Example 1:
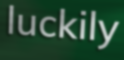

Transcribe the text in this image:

luckily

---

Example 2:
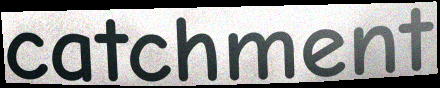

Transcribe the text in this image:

catchment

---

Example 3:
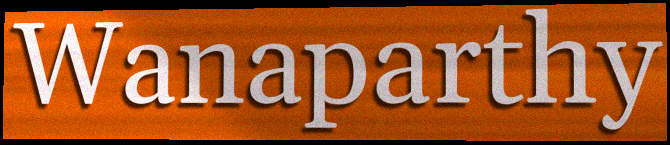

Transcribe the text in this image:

Wanaparthy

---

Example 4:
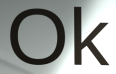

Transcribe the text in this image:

Ok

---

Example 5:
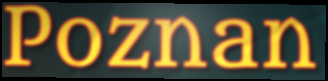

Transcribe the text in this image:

Poznan